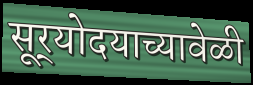
सूर्योदयाच्यावेळी